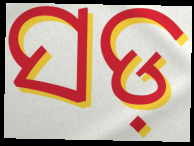
ସଡ଼